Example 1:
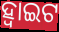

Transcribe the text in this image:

ହ୍ୱାଇଟ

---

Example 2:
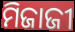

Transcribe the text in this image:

ମିଜାଜୀ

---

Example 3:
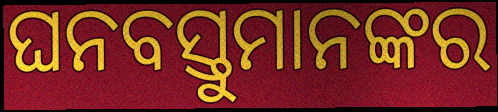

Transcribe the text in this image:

ଘନବସ୍ତୁମାନଙ୍କର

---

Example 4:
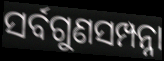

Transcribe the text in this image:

ସର୍ବଗୁଣସମ୍ପନ୍ନା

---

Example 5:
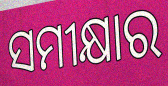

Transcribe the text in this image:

ସମୀକ୍ଷାର